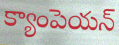
క్యాంపెయన్